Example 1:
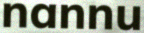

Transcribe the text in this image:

nannu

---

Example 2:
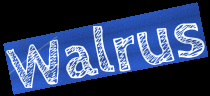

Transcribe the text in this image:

Walrus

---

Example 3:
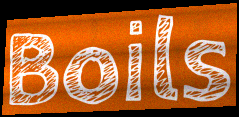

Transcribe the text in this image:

Boils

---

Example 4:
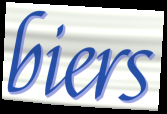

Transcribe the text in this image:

biers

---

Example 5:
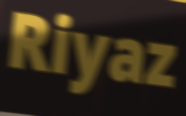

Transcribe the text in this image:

Riyaz